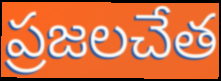
ప్రజలచేత